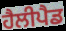
ਹੈਲੀਪੈਡ